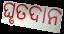
ଘୃତଦାନ